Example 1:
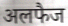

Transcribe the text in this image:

अलफैज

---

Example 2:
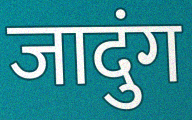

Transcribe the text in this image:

जादुंग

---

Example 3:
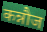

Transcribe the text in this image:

कन्नौज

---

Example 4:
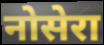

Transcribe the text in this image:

नोसेरा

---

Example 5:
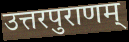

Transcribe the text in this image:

उत्तरपुराणम्